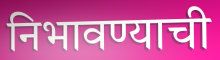
निभावण्याची